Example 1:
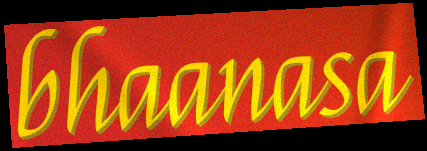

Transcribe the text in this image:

bhaanasa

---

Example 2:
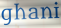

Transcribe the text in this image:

ghani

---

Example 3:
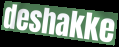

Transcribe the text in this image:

deshakke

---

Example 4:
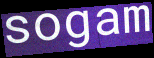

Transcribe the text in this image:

sogam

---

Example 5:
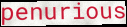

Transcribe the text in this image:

penurious